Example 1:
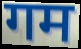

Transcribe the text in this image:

गम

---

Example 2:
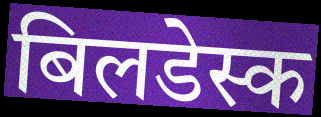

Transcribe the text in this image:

बिलडेस्क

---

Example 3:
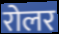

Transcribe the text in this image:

रोलर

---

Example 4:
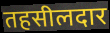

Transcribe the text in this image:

तहसीलदार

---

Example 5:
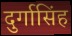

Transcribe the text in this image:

दुर्गासिंह